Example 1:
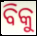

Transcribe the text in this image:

ବିକୁ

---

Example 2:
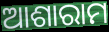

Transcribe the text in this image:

ଆଶାରାମ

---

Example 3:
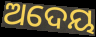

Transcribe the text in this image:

ଅଦେୟ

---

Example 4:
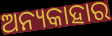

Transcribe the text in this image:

ଅନ୍ୟକାହାର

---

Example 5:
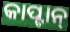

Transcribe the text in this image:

କାପ୍ଟାନ୍